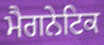
ਮੈਗਨੇਟਿਕ